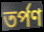
তর্পণ